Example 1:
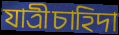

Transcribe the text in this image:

যাত্রীচাহিদা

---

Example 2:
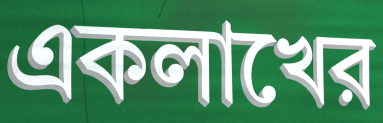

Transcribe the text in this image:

একলাখের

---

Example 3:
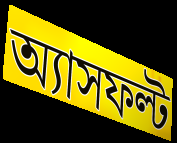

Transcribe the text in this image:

অ্যাসফল্ট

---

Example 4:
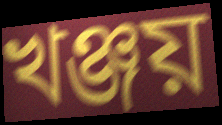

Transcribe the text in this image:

খঞ্জয়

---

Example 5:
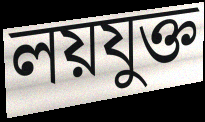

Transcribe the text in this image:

লয়যুক্ত